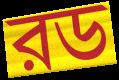
রড